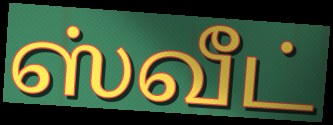
ஸ்வீட்